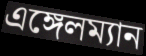
এঙ্গেলম্যান